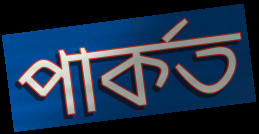
পাৰ্কত